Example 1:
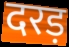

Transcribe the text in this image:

दरड़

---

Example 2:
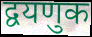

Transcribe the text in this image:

द्वयणुक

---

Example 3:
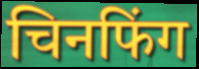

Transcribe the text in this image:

चिनफिंग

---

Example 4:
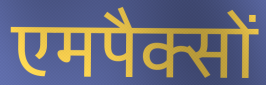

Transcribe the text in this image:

एमपैक्सों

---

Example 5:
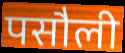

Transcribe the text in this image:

पसौली